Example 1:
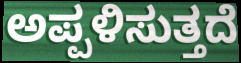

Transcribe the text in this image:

ಅಪ್ಪಳಿಸುತ್ತದೆ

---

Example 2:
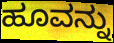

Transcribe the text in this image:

ಹೂವನ್ನು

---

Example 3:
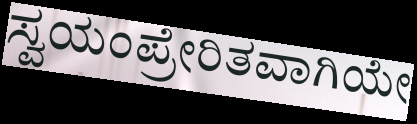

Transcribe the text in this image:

ಸ್ವಯಂಪ್ರೇರಿತವಾಗಿಯೇ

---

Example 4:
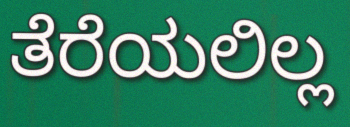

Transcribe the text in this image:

ತೆರೆಯಲಿಲ್ಲ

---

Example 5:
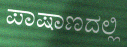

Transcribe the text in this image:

ಪಾಷಾಣದಲ್ಲಿ